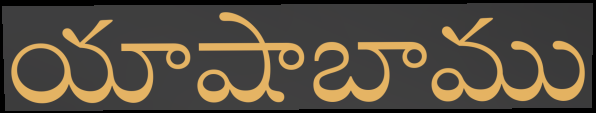
యాషాబాము